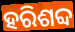
ହରିଶବ୍ଦ